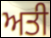
ਅਤੀ